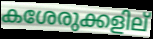
കശേരുക്കളില്